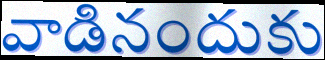
వాడినందుకు